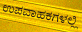
ಉಪವಾಹಕಗಳಲ್ಲಿ